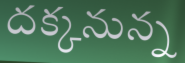
దక్కనున్న